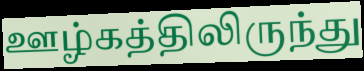
ஊழ்கத்திலிருந்து